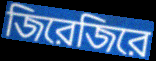
জিরেজিরে